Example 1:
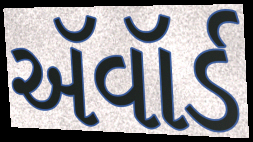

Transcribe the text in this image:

ઍવૉર્ડ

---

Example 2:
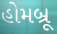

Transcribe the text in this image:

હોમબ્રૂ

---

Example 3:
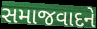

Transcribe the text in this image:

સમાજવાદને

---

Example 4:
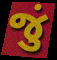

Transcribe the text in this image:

જું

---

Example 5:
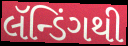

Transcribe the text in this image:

લૅન્ડિંગથી